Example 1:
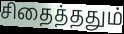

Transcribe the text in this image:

சிதைத்ததும்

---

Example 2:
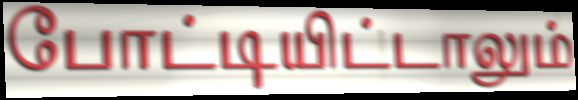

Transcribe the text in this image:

போட்டியிட்டாலும்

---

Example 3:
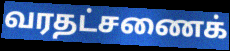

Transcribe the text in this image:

வரதட்சணைக்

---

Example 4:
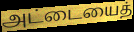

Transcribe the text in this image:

அட்டையைத்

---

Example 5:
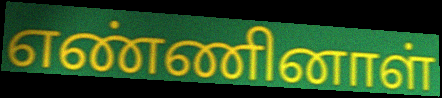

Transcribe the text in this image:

எண்ணினாள்